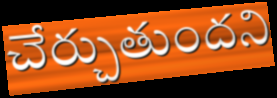
చేర్చుతుందని